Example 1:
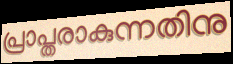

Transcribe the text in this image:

പ്രാപ്തരാകുന്നതിനു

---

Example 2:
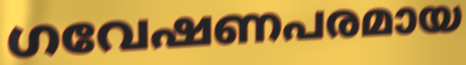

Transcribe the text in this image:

ഗവേഷണപരമായ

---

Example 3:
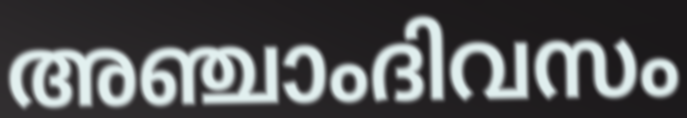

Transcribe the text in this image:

അഞ്ചാംദിവസം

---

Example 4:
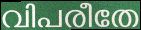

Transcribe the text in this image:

വിപരീതേ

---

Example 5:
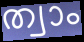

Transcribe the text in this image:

ത്വാം